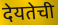
देयतेची